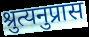
श्रुत्यनुप्रास